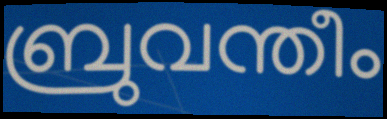
ബ്രുവന്തീം